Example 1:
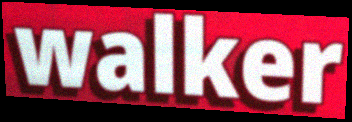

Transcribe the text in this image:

walker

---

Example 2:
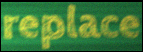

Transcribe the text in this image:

replace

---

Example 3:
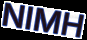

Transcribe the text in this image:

NIMH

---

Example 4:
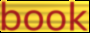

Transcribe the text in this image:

book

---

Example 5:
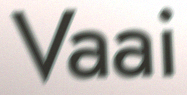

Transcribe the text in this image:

Vaai